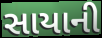
સાયાની